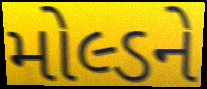
મોલ્ડને